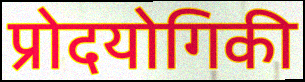
प्रोदयोगिकी